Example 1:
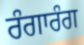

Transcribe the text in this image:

ਰੰਗਾਰੰਗ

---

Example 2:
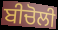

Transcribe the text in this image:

ਬੀਚੋਲੀ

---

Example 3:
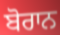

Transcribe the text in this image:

ਬੋਰਾਨ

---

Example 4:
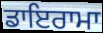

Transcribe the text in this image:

ਡਾਇਰਾਮਾ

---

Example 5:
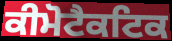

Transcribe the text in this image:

ਕੀਮੋਟੈਕਟਿਕ